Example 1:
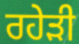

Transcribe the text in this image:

ਰਹੇੜੀ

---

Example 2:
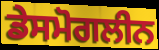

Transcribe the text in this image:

ਡੇਸਮੋਗਲੀਨ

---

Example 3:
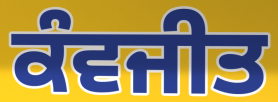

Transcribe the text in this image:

ਕੰਵਜੀਤ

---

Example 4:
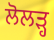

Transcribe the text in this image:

ਲੋਲੜ੍ਹ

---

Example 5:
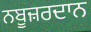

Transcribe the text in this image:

ਨਬੂਜ਼ਰਦਾਨ